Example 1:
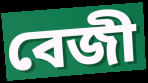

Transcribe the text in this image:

বেজী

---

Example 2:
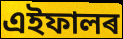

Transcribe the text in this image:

এইফালৰ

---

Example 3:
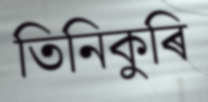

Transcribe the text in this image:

তিনিকুৰি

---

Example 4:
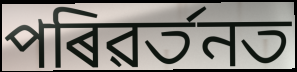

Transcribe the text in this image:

পৰিৱৰ্তনত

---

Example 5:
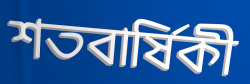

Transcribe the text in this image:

শতবাৰ্ষিকী